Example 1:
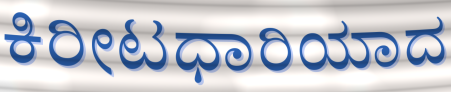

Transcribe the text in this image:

ಕಿರೀಟಧಾರಿಯಾದ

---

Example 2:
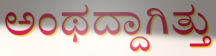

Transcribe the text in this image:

ಅಂಥದ್ದಾಗಿತ್ತು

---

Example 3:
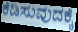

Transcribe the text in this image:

ಕೆಡಿಸುವುದಕ್ಕೆ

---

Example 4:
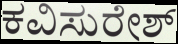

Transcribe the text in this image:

ಕವಿಸುರೇಶ್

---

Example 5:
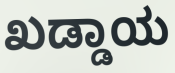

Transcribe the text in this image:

ಖಡ್ಡಾಯ